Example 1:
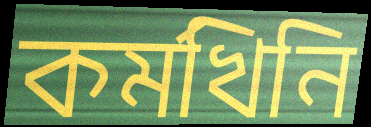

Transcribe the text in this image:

কৰ্মখিনি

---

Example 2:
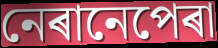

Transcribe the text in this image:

নেৰানেপেৰা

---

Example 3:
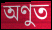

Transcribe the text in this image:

অণুত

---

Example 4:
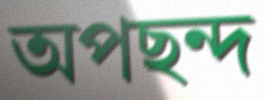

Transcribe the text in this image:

অপছন্দ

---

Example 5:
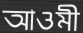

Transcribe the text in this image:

আওমী